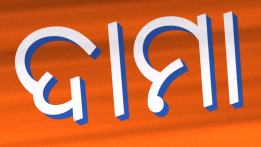
ଦାମା